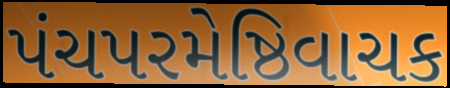
પંચપરમેષ્ઠિવાચક